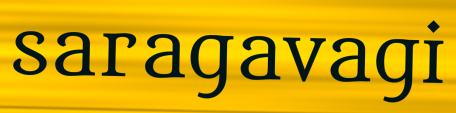
saragavagi